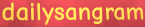
dailysangram